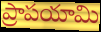
ప్రాపయామి